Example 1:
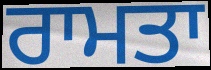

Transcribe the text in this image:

ਰਾਮਤਾ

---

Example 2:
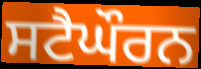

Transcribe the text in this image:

ਸਟੈਘੌਰਨ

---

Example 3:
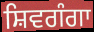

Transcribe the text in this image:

ਸ਼ਿਵਗੰਗਾ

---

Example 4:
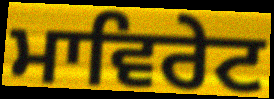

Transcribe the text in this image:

ਮਾਵਿਰੇਟ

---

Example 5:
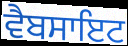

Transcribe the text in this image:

ਵੈਬਸਾਇਟ